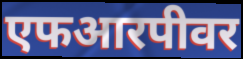
एफआरपीवर